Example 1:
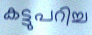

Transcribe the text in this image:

കട്ടുപറിച്ച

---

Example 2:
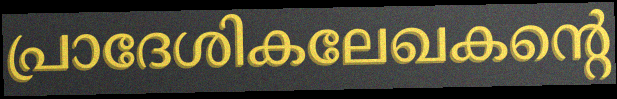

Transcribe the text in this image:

പ്രാദേശികലേഖകന്റെ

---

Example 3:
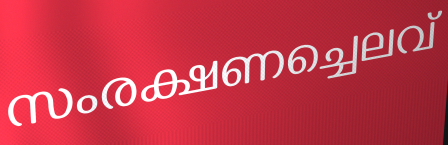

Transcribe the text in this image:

സംരക്ഷണച്ചെലവ്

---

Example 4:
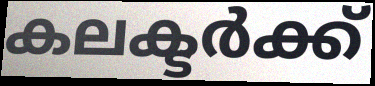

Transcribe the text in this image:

കലക്ടർക്ക്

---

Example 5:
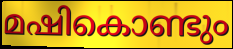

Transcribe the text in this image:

മഷികൊണ്ടും